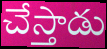
చేస్తాడు